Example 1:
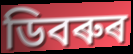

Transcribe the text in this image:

ডিবৰুৰ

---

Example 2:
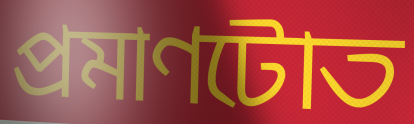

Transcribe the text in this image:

প্ৰমাণটোত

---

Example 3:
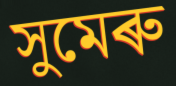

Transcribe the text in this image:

সুমেৰু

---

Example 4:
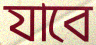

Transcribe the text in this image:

যাবে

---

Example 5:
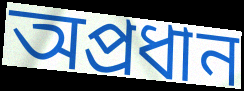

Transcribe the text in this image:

অপ্ৰধান